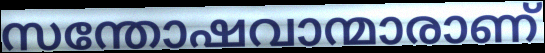
സന്തോഷവാന്മാരാണ്